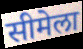
सीमेला